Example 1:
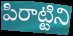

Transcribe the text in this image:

పిరాట్టిని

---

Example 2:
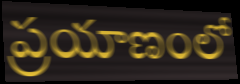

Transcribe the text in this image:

ప్రయాణంలో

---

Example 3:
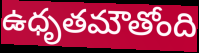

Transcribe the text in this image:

ఉధృతమౌతోంది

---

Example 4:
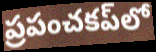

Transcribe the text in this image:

ప్రపంచకప్‌లో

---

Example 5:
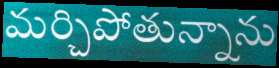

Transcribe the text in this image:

మర్చిపోతున్నాను